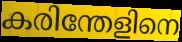
കരിന്തേളിനെ